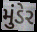
મુંડેર